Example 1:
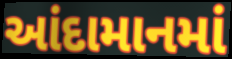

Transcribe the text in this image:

આંદામાનમાં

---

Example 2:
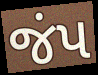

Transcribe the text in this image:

જંપ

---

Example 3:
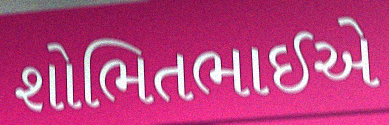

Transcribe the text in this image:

શોભિતભાઈએ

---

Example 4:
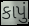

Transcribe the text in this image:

કાપું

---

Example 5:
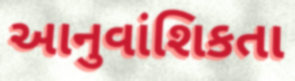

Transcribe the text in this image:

આનુવાંશિકતા